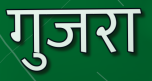
गुजरा